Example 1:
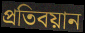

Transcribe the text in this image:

প্রতিবয়ান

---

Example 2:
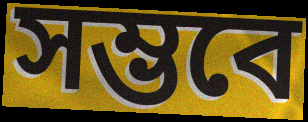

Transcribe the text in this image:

সম্ভবে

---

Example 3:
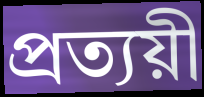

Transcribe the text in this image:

প্রত্যয়ী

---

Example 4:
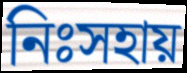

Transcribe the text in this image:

নিঃসহায়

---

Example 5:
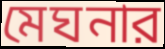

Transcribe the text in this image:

মেঘনার